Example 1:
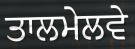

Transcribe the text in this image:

ਤਾਲਮੇਲਵੇ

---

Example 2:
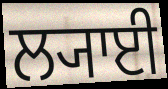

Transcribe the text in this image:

ਲ੍ਯਾਈ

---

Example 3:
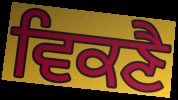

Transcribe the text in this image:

ਵਿਕਣੈ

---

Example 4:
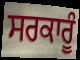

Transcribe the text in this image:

ਸਰਕਾਰੂੰ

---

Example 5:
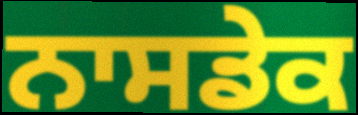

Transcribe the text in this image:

ਨਾਸਡੇਕ